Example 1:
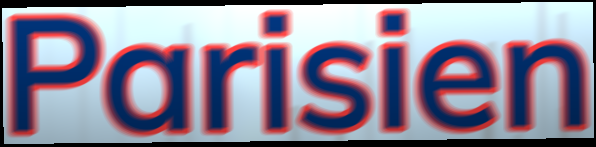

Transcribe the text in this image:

Parisien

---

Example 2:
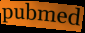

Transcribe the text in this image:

pubmed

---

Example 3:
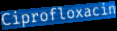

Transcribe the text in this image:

Ciprofloxacin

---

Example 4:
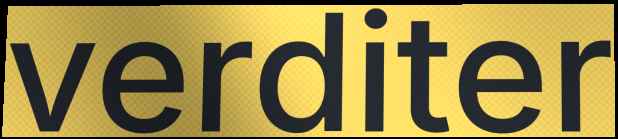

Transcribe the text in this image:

verditer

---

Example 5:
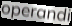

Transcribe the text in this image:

operandi